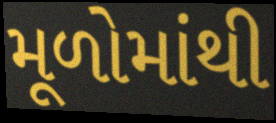
મૂળોમાંથી